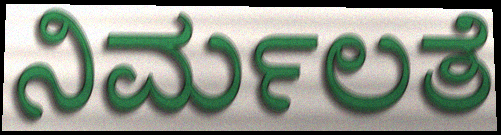
ನಿರ್ಮಲತೆ